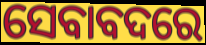
ସେବାବଦରେ